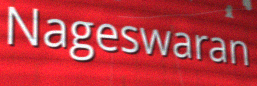
Nageswaran